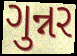
ગુન્નર